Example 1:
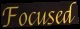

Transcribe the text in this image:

Focused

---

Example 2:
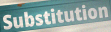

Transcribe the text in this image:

Substitution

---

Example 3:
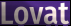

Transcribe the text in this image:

Lovat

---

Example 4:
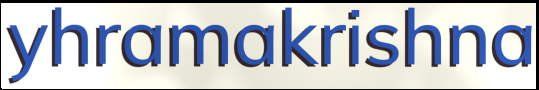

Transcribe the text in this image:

yhramakrishna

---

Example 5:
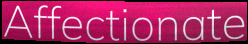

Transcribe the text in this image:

Affectionate